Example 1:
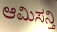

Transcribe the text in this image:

ಆಮಿಸನ್ತಿ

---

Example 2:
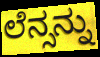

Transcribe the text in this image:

ಲೆನ್ಸನ್ನು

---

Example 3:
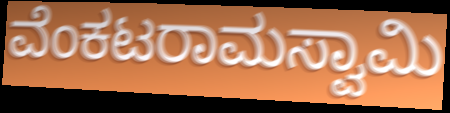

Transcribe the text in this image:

ವೆಂಕಟರಾಮಸ್ವಾಮಿ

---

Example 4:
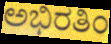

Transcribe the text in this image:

ಅಭಿರತಿಂ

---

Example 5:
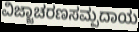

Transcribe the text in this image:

ವಿಜ್ಜಾಚರಣಸಮ್ಪದಾಯ